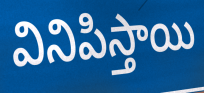
వినిపిస్తాయి